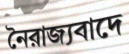
নৈরাজ্যবাদে